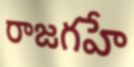
రాజగహే